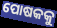
ପୋଷକକୁ